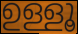
ഉള്ളൂ